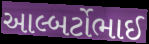
આલ્બર્ટોભાઈ